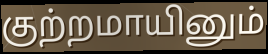
குற்றமாயினும்